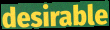
desirable